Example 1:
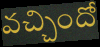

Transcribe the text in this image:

వచ్చిందో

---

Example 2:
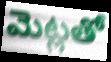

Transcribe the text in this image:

మెట్లతో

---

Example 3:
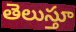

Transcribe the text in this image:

తెలుస్తూ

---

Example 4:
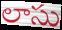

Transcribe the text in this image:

లాసు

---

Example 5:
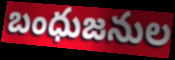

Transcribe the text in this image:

బంధుజనుల